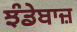
ਝੰਡੇਬਾਜ਼